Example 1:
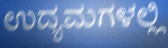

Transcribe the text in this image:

ಉದ್ಯಮಗಳಲ್ಲಿ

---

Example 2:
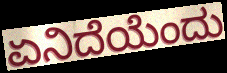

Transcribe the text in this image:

ಏನಿದೆಯೆಂದು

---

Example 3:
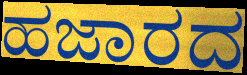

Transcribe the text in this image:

ಹಜಾರದ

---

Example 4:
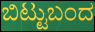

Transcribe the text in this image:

ಬಿಟ್ಟುಬಂದ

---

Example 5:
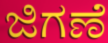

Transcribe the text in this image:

ಜಿಗಣೆ